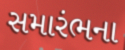
સમારંભના